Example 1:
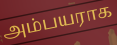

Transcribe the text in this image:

அம்பயராக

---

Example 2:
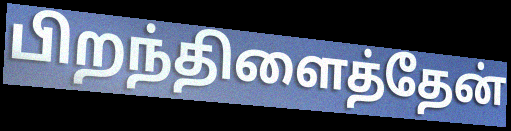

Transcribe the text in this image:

பிறந்திளைத்தேன்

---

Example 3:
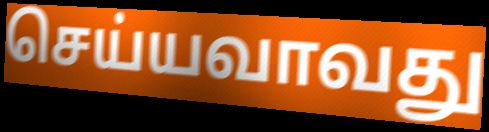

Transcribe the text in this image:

செய்யவாவது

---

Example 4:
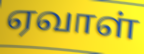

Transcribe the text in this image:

ஏவாள்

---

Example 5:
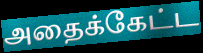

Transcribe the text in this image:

அதைக்கேட்ட